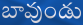
బావుండు